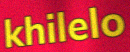
khilelo